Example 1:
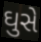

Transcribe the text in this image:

ઘુસે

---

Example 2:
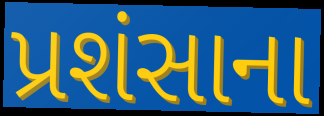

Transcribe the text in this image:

પ્રશંસાના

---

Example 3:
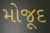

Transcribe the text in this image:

મોજૂદ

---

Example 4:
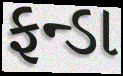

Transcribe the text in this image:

ફન્ડા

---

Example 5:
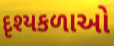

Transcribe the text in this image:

દૃશ્યકળાઓ